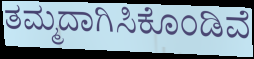
ತಮ್ಮದಾಗಿಸಿಕೊಂಡಿವೆ